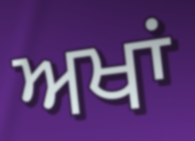
ਅਖਾਂ